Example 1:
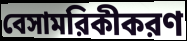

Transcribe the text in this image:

বেসামরিকীকরণ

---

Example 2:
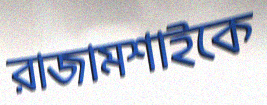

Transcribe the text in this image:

রাজামশাইকে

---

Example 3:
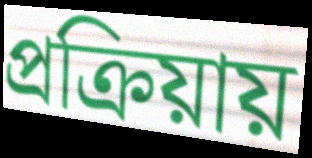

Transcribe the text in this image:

প্রক্রিয়ায়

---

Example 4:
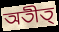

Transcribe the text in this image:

অতীত্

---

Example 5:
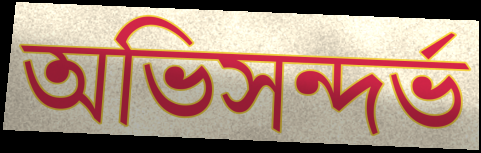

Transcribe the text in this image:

অভিসন্দর্ভ